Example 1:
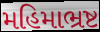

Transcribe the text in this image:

મહિમાભ્રષ્ટ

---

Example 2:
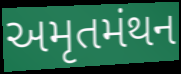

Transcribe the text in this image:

અમૃતમંથન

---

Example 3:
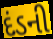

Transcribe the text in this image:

દંડની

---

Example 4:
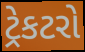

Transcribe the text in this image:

ટ્રેકટરો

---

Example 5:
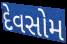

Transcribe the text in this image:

દેવસોમ